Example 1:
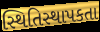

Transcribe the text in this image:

સ્થિતિસ્થાપકતા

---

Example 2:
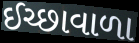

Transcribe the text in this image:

ઈચ્છાવાળા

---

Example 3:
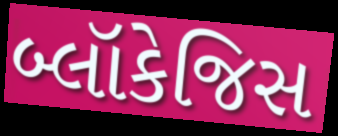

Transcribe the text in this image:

બ્લૉકેજિસ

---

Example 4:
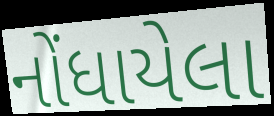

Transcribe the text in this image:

નોંધાયેલા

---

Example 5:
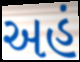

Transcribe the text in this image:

અહં